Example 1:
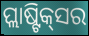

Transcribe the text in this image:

ପ୍ଲାଷ୍ଟିକ୍‌ସର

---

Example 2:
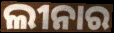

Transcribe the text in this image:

ଲୀନାର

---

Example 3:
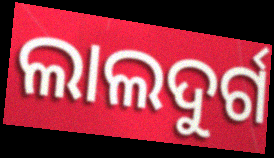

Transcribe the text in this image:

ଲାଲଦୁର୍ଗ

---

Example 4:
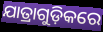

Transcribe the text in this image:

ଯାତ୍ରାଗୁଡ଼ିକରେ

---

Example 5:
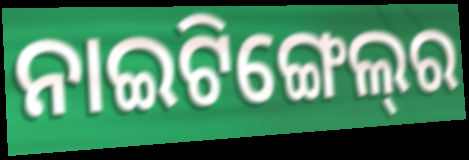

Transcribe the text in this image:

ନାଇଟିଙ୍ଗେଲ୍‌ର